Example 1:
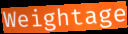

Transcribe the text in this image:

Weightage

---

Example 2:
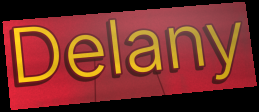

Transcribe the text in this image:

Delany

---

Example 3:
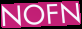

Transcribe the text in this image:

NOFN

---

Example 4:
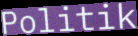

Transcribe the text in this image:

Politik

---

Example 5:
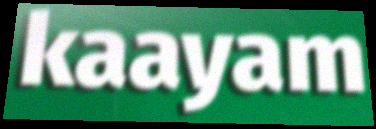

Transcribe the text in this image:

kaayam